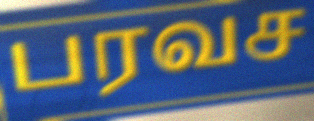
பரவச